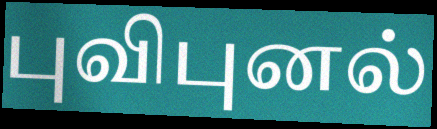
புவிபுனல்